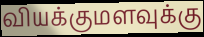
வியக்குமளவுக்கு